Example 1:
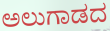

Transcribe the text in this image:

ಅಲುಗಾಡದ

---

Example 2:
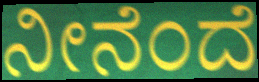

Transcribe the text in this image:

ನೀನೆಂದೆ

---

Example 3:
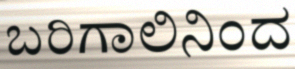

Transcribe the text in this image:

ಬರಿಗಾಲಿನಿಂದ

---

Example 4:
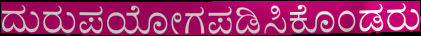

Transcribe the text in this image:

ದುರುಪಯೋಗಪಡಿಸಿಕೊಂಡರು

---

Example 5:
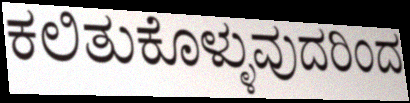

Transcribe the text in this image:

ಕಲಿತುಕೊಳ್ಳುವುದರಿಂದ